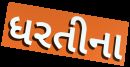
ધરતીના